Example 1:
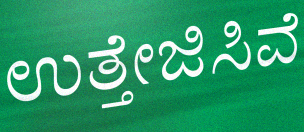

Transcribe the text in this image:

ಉತ್ತೇಜಿಸಿವೆ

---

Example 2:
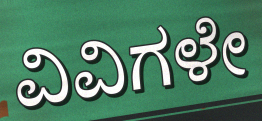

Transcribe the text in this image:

ವಿವಿಗಳೇ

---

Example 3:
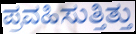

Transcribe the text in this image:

ಪ್ರವಹಿಸುತ್ತಿತ್ತು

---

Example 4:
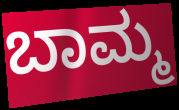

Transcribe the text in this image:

ಬಾಮ್ಮ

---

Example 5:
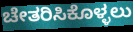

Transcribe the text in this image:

ಚೇತರಿಸಿಕೊಳ್ಳಲು